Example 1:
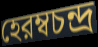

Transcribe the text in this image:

হেরম্বচন্দ্র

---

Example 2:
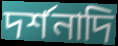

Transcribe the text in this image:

দর্শনাদি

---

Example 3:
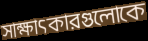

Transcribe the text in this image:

সাক্ষাৎকারগুলোকে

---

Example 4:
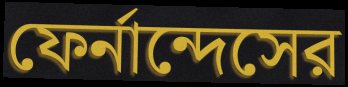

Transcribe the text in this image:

ফের্নান্দেসের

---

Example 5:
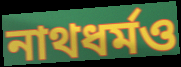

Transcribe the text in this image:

নাথধর্মও